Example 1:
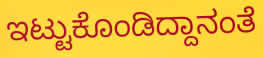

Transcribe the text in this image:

ಇಟ್ಟುಕೊಂಡಿದ್ದಾನಂತೆ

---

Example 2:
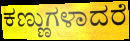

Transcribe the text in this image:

ಕಣ್ಣುಗಳಾದರೆ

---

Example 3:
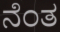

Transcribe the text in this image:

ನೆಂತ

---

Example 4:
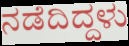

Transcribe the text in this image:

ನಡೆದಿದ್ದಳು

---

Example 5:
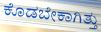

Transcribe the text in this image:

ಕೊಡಬೇಕಾಗಿತ್ತು